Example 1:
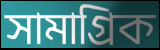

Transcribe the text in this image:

সামাগ্রিক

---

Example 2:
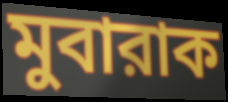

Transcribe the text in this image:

মুবারাক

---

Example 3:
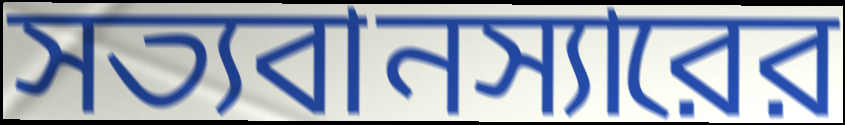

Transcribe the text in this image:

সত্যবানস্যারের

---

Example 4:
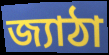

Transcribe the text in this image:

জ্যাঠা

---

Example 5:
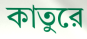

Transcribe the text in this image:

কাতুরে